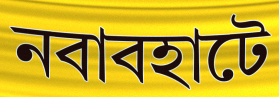
নবাবহাটে